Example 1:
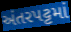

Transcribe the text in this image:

અંતરપટ્ટમાં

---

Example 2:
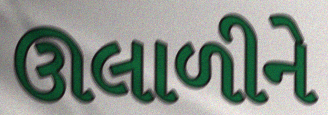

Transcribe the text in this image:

ઊલાળીને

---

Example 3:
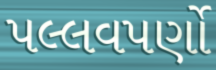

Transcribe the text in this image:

પલ્લવપર્ણો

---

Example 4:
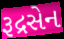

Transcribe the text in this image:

રૂદ્રસેન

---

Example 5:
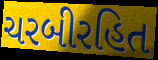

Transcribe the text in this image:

ચરબીરહિત